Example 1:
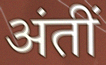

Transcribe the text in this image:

अंतीं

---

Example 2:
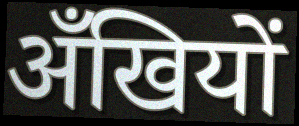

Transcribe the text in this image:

अँखियों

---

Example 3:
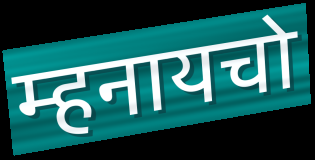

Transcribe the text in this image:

म्हनायचो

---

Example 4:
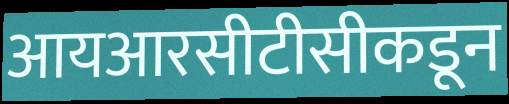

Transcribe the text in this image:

आयआरसीटीसीकडून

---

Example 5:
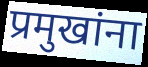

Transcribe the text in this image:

प्रमुखांना